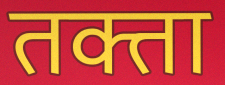
तक्ता